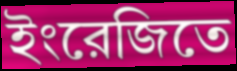
ইংরেজিতে